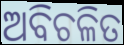
ଅବିଚଳିତ